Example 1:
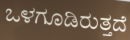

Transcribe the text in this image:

ಒಳಗೂಡಿರುತ್ತದೆ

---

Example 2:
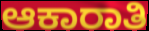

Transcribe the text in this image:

ಆಕಾರಾತಿ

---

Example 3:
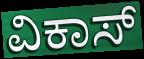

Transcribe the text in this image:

ವಿಕಾಸ್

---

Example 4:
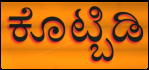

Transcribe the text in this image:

ಕೊಟ್ಬಿಡಿ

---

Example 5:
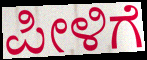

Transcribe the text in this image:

ಪೀಳಿಗೆ